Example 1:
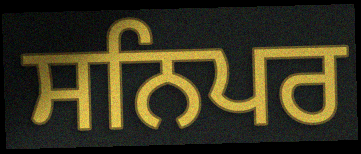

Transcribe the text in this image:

ਸਨਿਪਰ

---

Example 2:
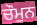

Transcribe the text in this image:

ਚੌਮੁਨ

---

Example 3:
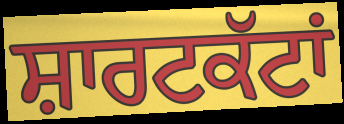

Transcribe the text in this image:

ਸ਼ਾਰਟਕੱਟਾਂ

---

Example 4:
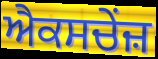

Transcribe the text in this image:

ਐਕਸਚੇਂਜ਼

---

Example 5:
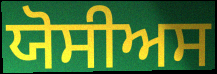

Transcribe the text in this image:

ਯੋਸੀਅਸ